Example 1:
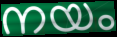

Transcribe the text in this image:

നയം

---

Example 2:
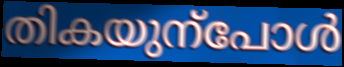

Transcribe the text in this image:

തികയുന്പോൾ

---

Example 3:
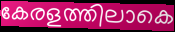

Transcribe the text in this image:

കേരളത്തിലാകെ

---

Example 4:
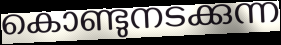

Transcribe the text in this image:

കൊണ്ടുനടക്കുന്ന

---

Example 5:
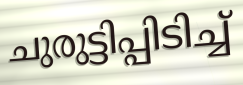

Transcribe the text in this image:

ചുരുട്ടിപ്പിടിച്ച്